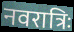
नवरात्रिः